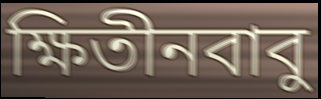
ক্ষিতীনবাবু